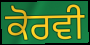
ਕੋਰਵੀ